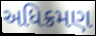
અધિક્રમણ